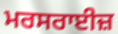
ਮਰਸਰਾਈਜ਼